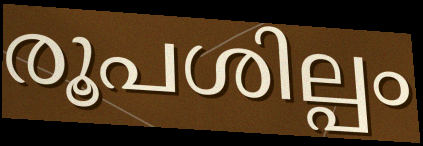
രൂപശില്പം